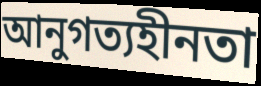
আনুগত্যহীনতা